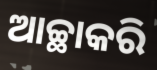
ଆଚ୍ଛାକରି